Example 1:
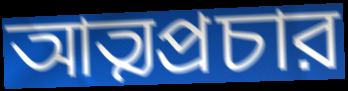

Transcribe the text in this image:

আত্মপ্রচার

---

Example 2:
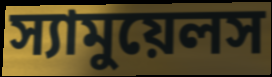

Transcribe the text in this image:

স্যামুয়েলস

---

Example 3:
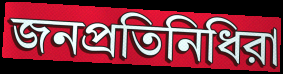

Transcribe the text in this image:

জনপ্রতিনিধিরা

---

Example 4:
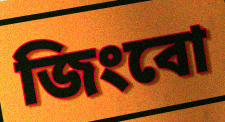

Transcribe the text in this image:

জিংবো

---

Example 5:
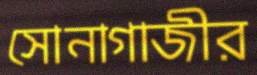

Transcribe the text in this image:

সোনাগাজীর